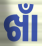
ଖାଁ